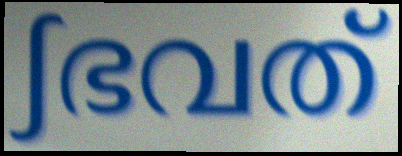
ഽഭവത്